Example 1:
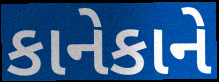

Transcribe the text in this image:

કાનેકાને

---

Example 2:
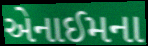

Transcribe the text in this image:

એનાઈમના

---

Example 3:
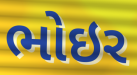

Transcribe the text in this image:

ભોઇર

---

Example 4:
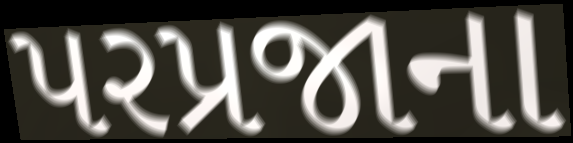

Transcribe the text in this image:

પરપ્રજાના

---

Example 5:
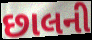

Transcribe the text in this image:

છાલની